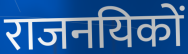
राजनयिकों